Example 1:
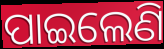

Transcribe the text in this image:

ପାଇଲେଣି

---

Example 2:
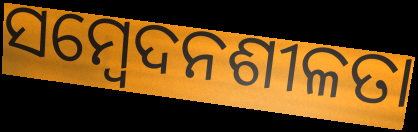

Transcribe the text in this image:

ସମ୍ଵେଦନଶୀଳତା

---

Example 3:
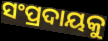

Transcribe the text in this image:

ସଂପ୍ରଦାୟକୁ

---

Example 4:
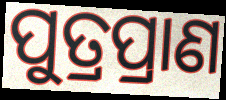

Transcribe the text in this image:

ପୁତ୍ରପ୍ରାଣ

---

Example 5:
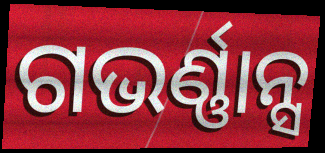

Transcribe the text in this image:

ଗଭର୍ଣ୍ଣାନ୍ସ